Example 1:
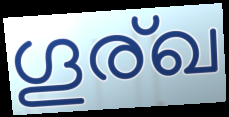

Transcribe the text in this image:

ഗൂര്ഖ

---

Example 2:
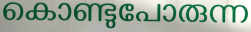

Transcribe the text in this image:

കൊണ്ടുപോരുന്ന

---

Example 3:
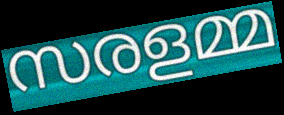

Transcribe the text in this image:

സരളമ്മ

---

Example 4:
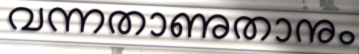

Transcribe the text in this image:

വന്നതാണുതാനും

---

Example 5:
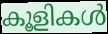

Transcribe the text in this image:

കൂളികൾ